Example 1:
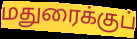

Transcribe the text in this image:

மதுரைக்குப்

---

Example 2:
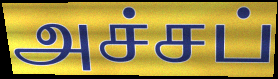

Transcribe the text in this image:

அச்சப்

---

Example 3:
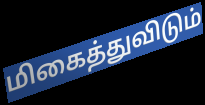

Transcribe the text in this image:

மிகைத்துவிடும்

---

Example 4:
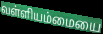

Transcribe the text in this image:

வள்ளியம்மையை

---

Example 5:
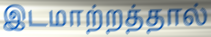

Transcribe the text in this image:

இடமாற்றத்தால்